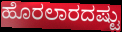
ಹೊರಲಾರದಷ್ಟು